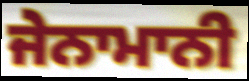
ਜੇਨਾਮਾਨੀ